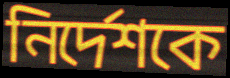
নির্দেশকে